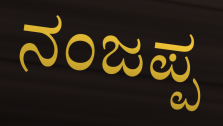
ನಂಜಪ್ಪ